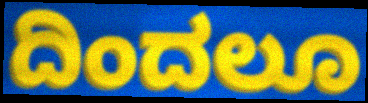
ದಿಂದಲೂ